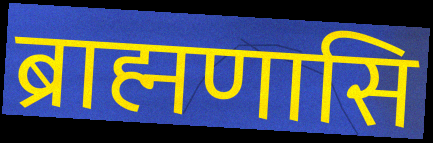
ब्राह्मणासि